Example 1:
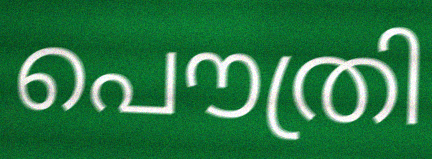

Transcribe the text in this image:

പൌത്രി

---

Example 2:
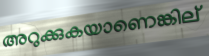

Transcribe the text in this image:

അറുക്കുകയാണെങ്കില്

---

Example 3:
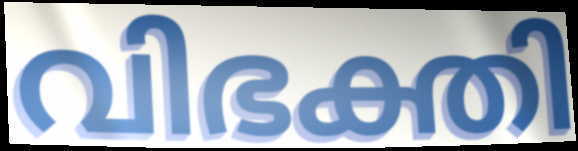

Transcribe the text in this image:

വിഭക്തി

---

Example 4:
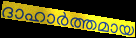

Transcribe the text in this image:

ദാഹാർത്തമായ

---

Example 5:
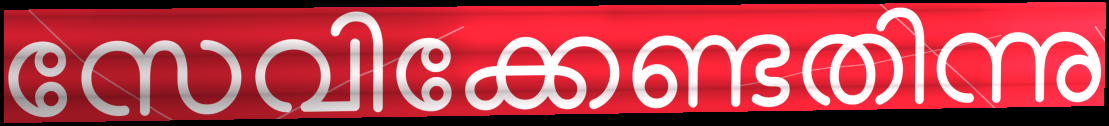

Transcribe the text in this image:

സേവിക്കേണ്ടതിന്നു